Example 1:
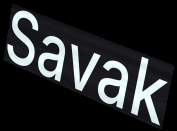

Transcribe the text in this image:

Savak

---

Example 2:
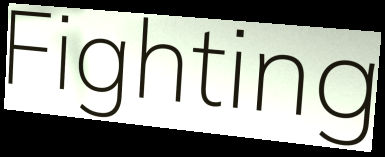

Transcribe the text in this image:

Fighting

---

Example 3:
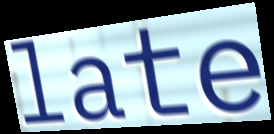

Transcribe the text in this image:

late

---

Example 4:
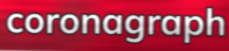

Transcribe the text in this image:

coronagraph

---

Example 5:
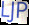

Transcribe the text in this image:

LJP